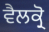
ਵੈਲਕ੍ਰੋ